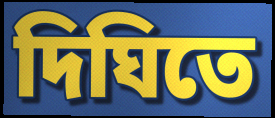
দিঘিতে